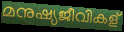
മനുഷ്യജീവികള്